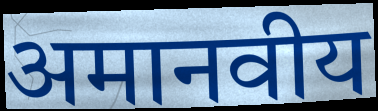
अमानवीय